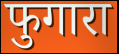
फुगारा